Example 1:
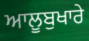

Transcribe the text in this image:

ਆਲੂਬੁਖਾਰੇ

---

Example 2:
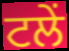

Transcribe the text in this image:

ਟਲੇਂ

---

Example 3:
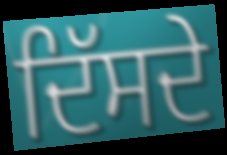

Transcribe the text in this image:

ਦਿੱਸਦੇ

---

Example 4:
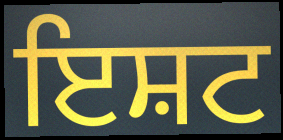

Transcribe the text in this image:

ਇਸ਼ਟ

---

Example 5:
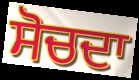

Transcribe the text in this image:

ਸੋਚਦਾ